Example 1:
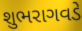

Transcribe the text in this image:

શુભરાગવડે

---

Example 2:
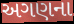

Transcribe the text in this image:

અગણના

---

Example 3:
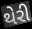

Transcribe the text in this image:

થેરી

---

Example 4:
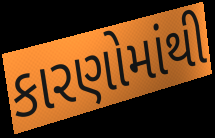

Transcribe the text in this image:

કારણોમાંથી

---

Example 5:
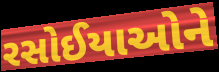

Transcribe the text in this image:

રસોઈયાઓને